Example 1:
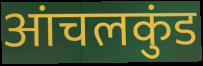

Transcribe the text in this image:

आंचलकुंड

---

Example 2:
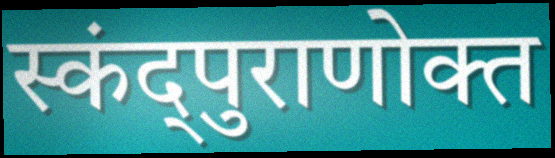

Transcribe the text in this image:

स्कंद्पुराणोक्त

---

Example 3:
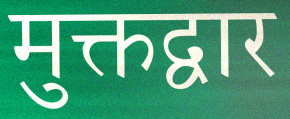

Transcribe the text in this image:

मुक्तद्वार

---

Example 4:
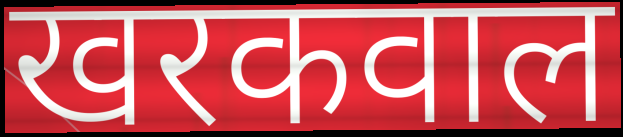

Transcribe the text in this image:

खरकवाल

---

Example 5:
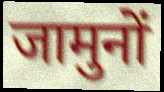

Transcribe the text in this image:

जामुनों